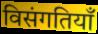
विसंगतियाँ